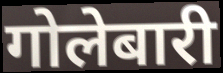
गोलेबारी